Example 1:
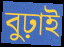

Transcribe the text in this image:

বুঢ়াই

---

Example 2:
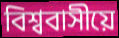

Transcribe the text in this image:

বিশ্ববাসীয়ে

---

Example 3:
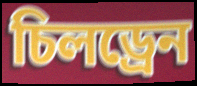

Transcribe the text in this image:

চিলড্ৰেন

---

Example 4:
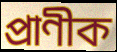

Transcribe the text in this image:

প্ৰাণীক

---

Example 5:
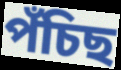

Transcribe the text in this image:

পঁচিছ